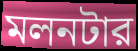
মলনটার